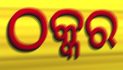
ଠକ୍କର